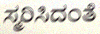
ಸ್ಮರಿಸಿದಂತೆ